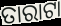
ତାରାଟା